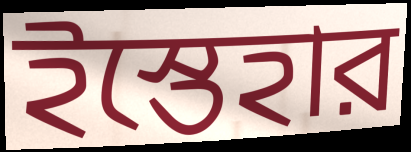
ইস্তেহার